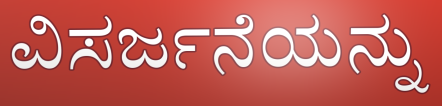
ವಿಸರ್ಜನೆಯನ್ನು